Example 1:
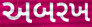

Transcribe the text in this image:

અબરખ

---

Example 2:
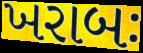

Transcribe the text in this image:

ખરાબઃ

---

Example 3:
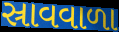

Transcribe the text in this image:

સ્રાવવાળા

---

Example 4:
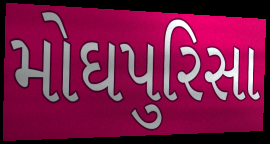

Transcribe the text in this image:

મોઘપુરિસા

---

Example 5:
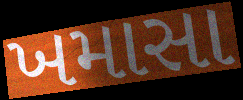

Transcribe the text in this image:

ખમાસા